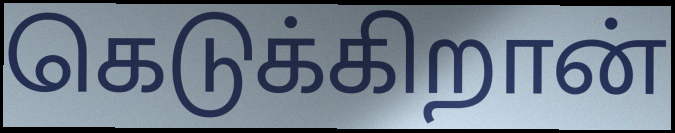
கெடுக்கிறான்